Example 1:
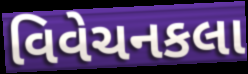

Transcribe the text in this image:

વિવેચનકલા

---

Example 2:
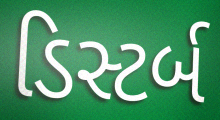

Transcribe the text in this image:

ડિસ્ટર્બ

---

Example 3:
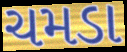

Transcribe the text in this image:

ચમડા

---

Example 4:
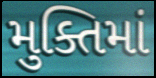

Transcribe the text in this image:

મુક્તિમાં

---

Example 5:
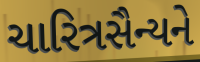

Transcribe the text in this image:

ચારિત્રસૈન્યને